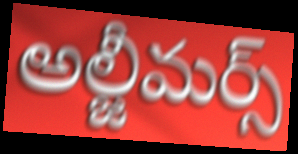
అల్జీమర్స్